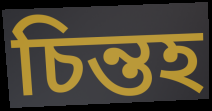
চিন্তহ